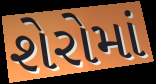
શેરોમાં